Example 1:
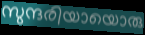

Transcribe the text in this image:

സുന്ദരിയായൊരു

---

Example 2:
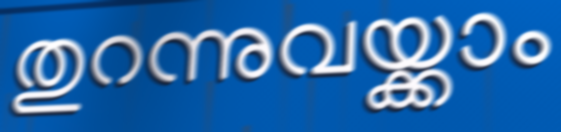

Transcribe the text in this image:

തുറന്നുവയ്ക്കാം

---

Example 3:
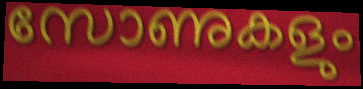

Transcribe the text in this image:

സോണുകളും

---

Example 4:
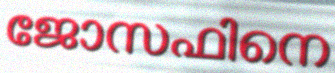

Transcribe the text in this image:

ജോസഫിനെ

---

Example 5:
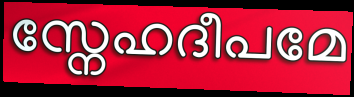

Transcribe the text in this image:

സ്നേഹദീപമേ